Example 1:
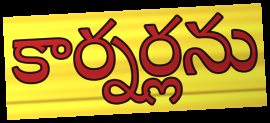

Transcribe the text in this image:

కార్నర్లను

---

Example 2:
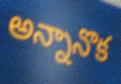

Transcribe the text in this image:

అన్నానొక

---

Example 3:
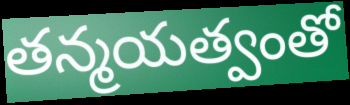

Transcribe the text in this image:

తన్మయత్వంతో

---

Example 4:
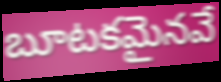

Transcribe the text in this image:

బూటకమైనవే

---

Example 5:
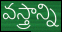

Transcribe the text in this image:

వస్త్రాన్ని